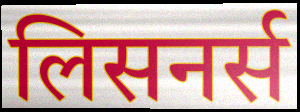
लिसनर्स